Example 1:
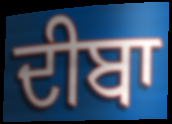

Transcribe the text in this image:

ਦੀਬਾ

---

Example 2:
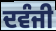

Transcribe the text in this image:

ਦਵੰਜੀ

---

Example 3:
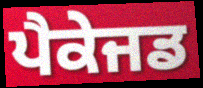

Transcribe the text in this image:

ਪੈਕੇਜਡ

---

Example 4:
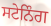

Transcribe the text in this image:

ਸਟੇਨਿੰਗ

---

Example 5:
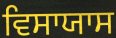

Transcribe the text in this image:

ਵਿਸਾਯਾਸ